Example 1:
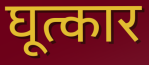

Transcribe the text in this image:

घूत्कार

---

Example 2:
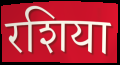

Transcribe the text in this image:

रशिया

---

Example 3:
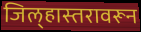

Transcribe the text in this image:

जिल्हास्तरावरून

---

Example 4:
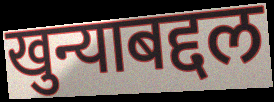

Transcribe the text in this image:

खुन्याबद्दल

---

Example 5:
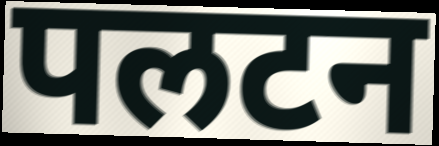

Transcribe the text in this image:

पलटन